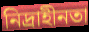
নিদ্ৰাহীনতা